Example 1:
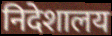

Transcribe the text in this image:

निदेशालय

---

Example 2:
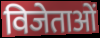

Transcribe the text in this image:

विजेताओं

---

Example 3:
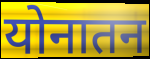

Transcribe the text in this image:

योनातन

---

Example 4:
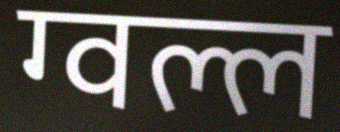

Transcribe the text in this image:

ग्वल्ल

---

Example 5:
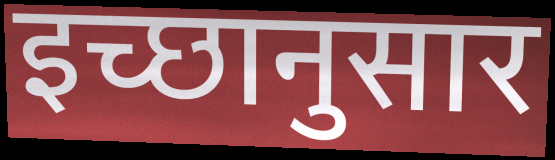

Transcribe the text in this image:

इच्छानुसार